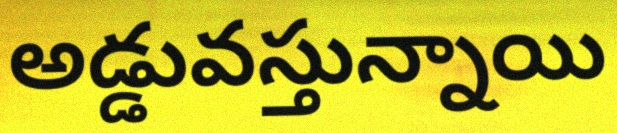
అడ్డువస్తున్నాయి